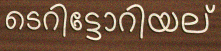
ടെറിട്ടോറിയല്